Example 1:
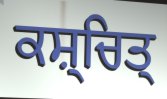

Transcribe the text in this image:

ਕਸ਼੍ਚਿਤ੍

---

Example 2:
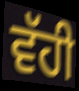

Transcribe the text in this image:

ਵੱਹੀ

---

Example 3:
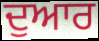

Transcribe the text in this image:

ਦੁਆਰ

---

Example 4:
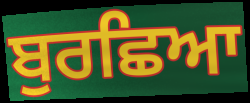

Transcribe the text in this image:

ਬੁਰਛਿਆ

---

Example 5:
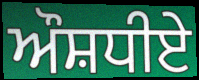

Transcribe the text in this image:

ਔਸ਼ਧੀਏ